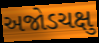
અજોડચક્ષુ